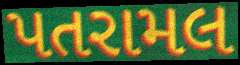
પતરામલ